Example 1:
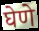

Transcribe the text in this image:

घेणे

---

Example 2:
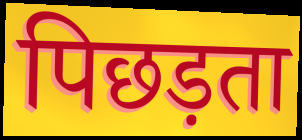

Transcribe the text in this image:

पिछड़ता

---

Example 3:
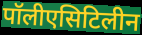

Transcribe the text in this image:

पॉलीएसिटिलीन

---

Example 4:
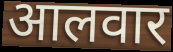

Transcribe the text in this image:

आलवार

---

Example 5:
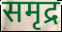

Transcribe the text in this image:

समृद्र